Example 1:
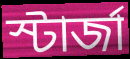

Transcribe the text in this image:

স্টার্জা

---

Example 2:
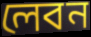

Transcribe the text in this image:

লেবন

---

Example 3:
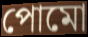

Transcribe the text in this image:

পোমো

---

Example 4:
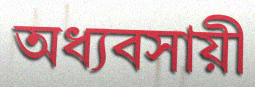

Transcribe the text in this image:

অধ্যবসায়ী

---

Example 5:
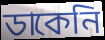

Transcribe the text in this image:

ডাকেনি